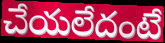
చేయలేదంటే